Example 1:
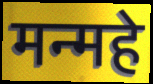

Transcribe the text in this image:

मन्महे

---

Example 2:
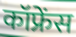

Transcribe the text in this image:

कॉफ्रेंस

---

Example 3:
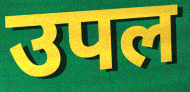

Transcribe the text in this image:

उपल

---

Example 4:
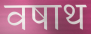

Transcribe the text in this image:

वषाथ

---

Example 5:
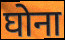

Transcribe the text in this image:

घोना